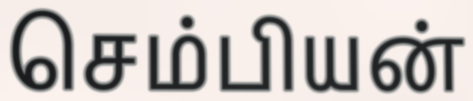
செம்பியன்